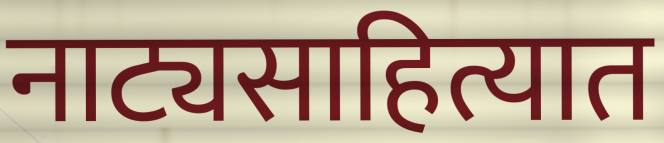
नाट्यसाहित्यात